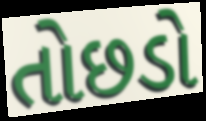
તોછડો